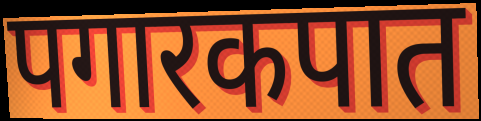
पगारकपात